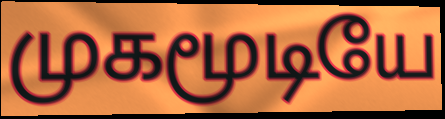
முகமூடியே